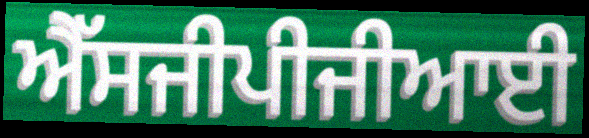
ਐੱਸਜੀਪੀਜੀਆਈ